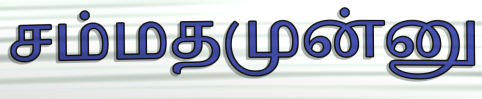
சம்மதமுன்னு